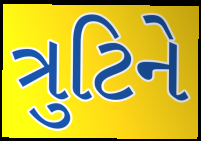
ત્રુટિને